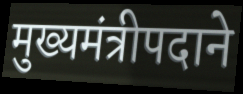
मुख्यमंत्रीपदाने